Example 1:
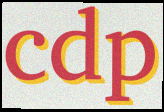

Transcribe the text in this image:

cdp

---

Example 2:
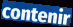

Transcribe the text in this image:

contenir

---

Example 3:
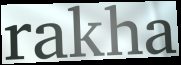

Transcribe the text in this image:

rakha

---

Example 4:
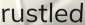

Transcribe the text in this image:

rustled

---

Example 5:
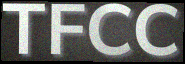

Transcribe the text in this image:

TFCC